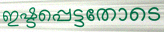
ഇഷ്ടപ്പെട്ടതോടെ